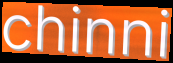
chinni